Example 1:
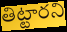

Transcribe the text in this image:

తిట్టారని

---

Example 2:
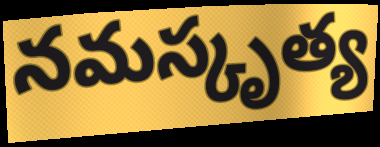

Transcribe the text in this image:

నమస్కృత్య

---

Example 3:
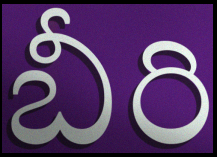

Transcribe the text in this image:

బీరి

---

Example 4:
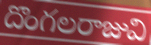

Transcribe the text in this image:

దొంగలరాజువి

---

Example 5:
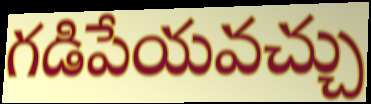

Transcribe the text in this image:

గడిపేయవచ్చు